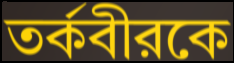
তর্কবীরকে